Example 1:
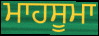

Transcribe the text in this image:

ਮਾਹਸੂਮਾ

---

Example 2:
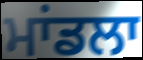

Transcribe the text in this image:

ਮਾਂਡਲਾ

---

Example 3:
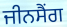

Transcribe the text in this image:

ਜੀਨਸੈਂਗ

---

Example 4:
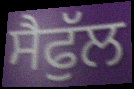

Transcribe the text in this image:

ਸੈਫੁੱਲ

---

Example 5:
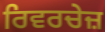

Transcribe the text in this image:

ਰਿਵਰਚੇਜ਼